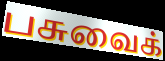
பசுவைக்